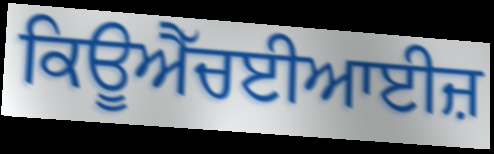
ਕਿਊਐੱਚਈਆਈਜ਼